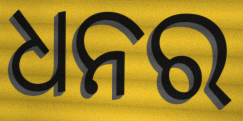
ଧନର